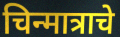
चिन्मात्राचे